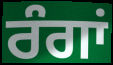
ਰੰਗਾਂ